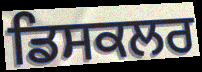
ਡਿਸਕਲਰ